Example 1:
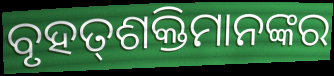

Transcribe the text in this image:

ବୃହତ୍‌ଶକ୍ତିମାନଙ୍କର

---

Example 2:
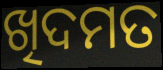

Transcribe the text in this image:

ଖିଦମତ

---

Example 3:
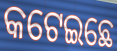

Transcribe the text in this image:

କଟେଇଛେ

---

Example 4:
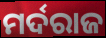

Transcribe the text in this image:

ମର୍ଦରାଜ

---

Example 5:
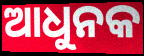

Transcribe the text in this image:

ଆଧୁନକ